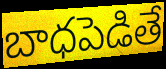
బాధపెడితే